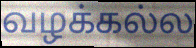
வழக்கல்ல